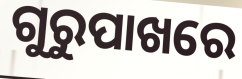
ଗୁରୁପାଖରେ